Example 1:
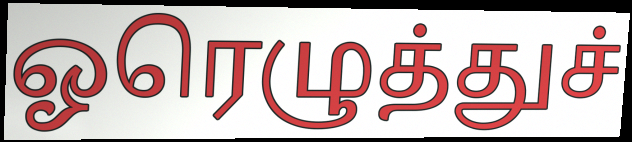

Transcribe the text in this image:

ஓரெழுத்துச்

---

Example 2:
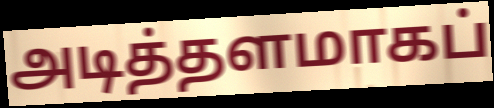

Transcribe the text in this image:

அடித்தளமாகப்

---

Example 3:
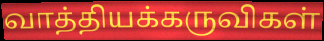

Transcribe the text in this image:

வாத்தியக்கருவிகள்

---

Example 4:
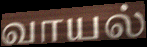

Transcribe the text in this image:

வாயல்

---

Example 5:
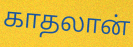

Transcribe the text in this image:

காதலான்